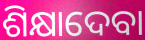
ଶିକ୍ଷାଦେବା